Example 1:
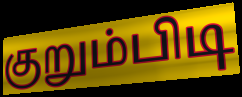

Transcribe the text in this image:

குறும்பிடி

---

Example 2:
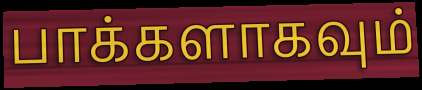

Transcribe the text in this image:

பாக்களாகவும்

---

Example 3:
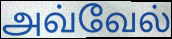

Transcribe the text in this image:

அவ்வேல்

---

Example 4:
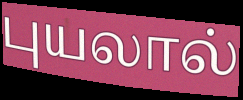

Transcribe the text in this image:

புயலால்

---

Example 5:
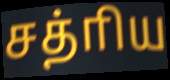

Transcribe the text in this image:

சத்ரிய